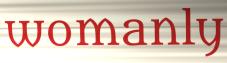
womanly